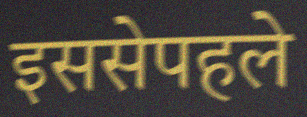
इससेपहले